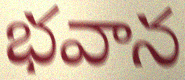
భవాన